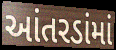
આંતરડાંમાં